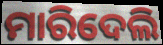
ମାରିଦେଲି